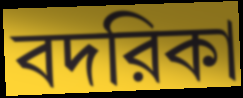
বদরিকা